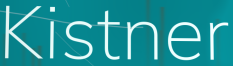
Kistner